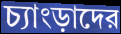
চ্যাংড়াদের